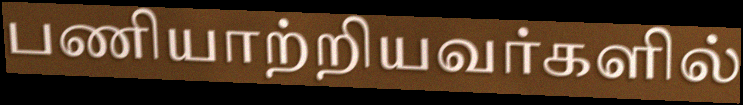
பணியாற்றியவர்களில்